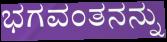
ಭಗವಂತನನ್ನು